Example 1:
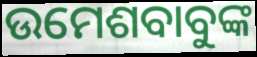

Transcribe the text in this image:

ଉମେଶବାବୁଙ୍କ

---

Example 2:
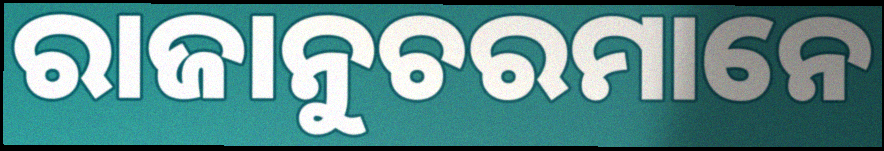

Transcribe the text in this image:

ରାଜାନୁଚରମାନେ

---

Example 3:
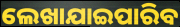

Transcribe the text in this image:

ଲେଖାଯାଇପାରିବ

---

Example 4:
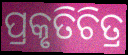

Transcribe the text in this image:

ପ୍ରକୃତିଚିତ୍ର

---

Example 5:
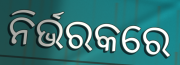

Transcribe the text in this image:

ନିର୍ଭରକରେ